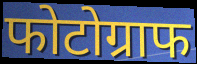
फोटोग्राफ